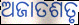
ଅଜାତଶତୃ